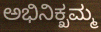
ಅಭಿನಿಕ್ಖಮ್ಮ